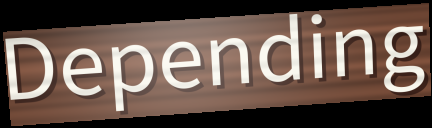
Depending